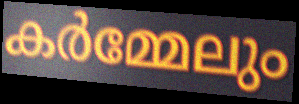
കർമ്മേലും